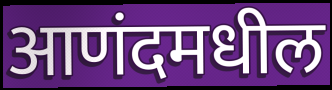
आणंदमधील